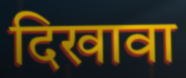
दिखावा